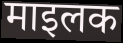
माइलक